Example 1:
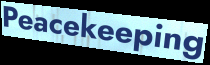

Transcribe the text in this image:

Peacekeeping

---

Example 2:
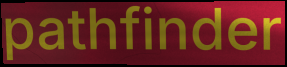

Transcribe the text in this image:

pathfinder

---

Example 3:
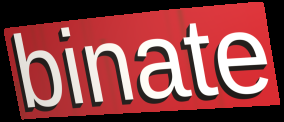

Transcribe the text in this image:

binate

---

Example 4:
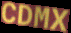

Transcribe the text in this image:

CDMX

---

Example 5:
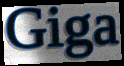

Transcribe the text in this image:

Giga